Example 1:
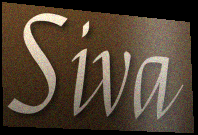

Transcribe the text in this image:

Siva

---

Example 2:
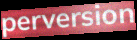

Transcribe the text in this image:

perversion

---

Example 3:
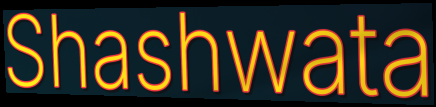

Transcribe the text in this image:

Shashwata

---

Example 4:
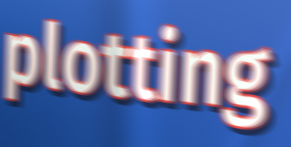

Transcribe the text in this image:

plotting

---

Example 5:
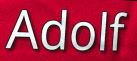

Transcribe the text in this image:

Adolf